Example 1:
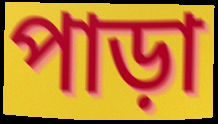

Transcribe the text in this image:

পাড়া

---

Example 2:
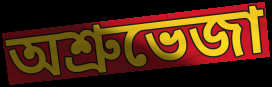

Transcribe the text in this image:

অশ্রুভেজা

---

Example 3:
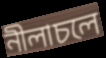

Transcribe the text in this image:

নীলাচলে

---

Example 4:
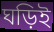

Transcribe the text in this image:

ঘড়িই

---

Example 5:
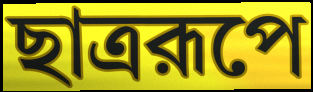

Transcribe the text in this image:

ছাত্ররূপে